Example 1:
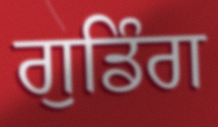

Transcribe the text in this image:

ਗੁਡਿੰਗ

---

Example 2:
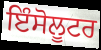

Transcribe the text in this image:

ਇੰਸੋਲੂਟਰ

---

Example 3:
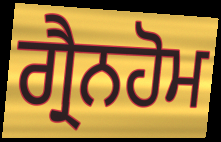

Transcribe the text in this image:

ਗ੍ਰੈਨਹੋਮ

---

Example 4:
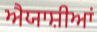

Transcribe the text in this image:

ਐਯਾਸ਼ੀਆਂ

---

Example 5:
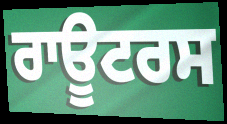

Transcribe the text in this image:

ਰਾਊਟਰਸ